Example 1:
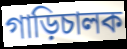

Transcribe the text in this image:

গাড়িচালক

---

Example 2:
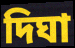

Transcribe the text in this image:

দিঘা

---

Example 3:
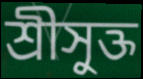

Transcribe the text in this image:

শ্রীসুক্ত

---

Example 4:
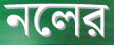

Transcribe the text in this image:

নলের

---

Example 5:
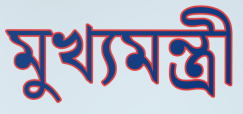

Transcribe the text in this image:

মুখ্যমন্ত্রী